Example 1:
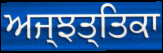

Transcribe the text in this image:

ਅਜ੍ਝਤ੍ਤਿਕਾ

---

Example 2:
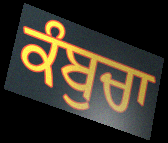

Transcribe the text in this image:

ਕੰਬੁਚਾ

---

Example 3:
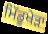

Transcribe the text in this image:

ਮਿੱਡੂਖੇੜਾ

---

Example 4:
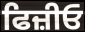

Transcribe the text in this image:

ਫਿਜ਼ੀਓ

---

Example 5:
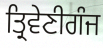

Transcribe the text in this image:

ਤ੍ਰਿਵੇਣੀਗੰਜ